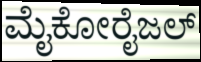
ಮೈಕೋರೈಜಲ್